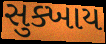
સુક્ખાય